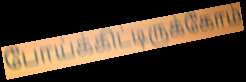
போய்க்கிட்டிருக்கோம்